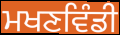
ਮਖਣਵਿੰਡੀ